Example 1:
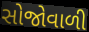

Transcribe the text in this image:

સોજોવાળી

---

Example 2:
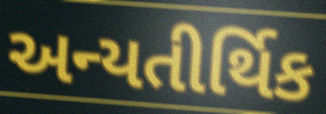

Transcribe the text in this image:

અન્યતીર્થિક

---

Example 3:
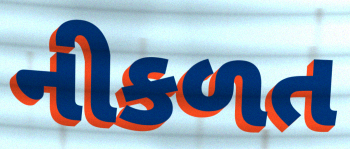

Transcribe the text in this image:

નીકળત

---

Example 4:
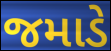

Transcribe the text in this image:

જમાડે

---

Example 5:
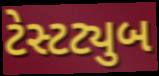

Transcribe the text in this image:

ટેસ્ટટ્યુબ